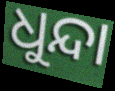
ଧୁନ୍ଦା